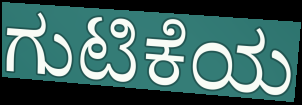
ಗುಟಿಕೆಯ